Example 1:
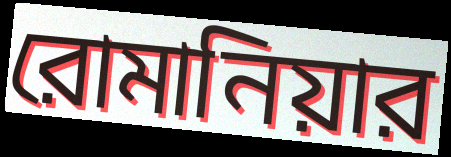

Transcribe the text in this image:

রোমানিয়ার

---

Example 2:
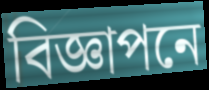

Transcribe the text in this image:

বিজ্ঞাপনে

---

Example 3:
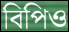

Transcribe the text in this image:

বিপিও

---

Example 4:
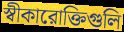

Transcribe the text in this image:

স্বীকারোক্তিগুলি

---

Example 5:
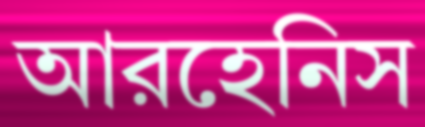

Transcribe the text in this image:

আরহেনিস